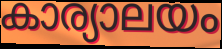
കാര്യാലയം